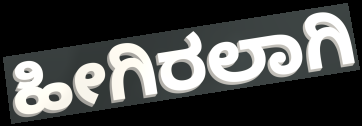
ಹೀಗಿರಲಾಗಿ